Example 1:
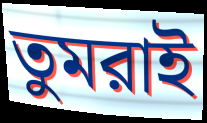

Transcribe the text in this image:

তুমরাই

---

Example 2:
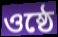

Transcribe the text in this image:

ওষ্ঠে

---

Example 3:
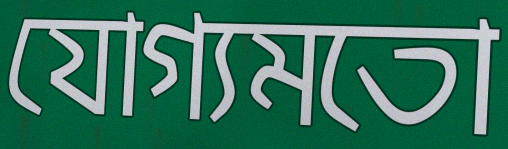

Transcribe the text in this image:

যোগ্যমতো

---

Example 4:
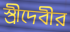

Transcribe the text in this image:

স্ত্রীদেবীর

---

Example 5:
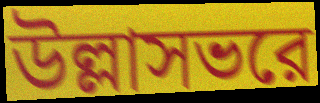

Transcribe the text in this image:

উল্লাসভরে